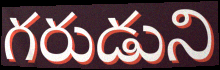
గరుడుని